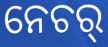
ନେଚର୍